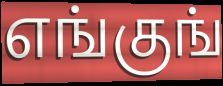
எங்குங்